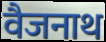
वैजनाथ